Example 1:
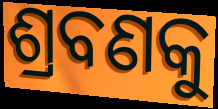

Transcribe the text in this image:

ଶ୍ରବଣକୁ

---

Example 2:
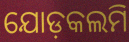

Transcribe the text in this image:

ଯୋଡ଼କଲମି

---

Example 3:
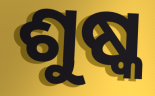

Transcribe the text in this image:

ଶୁଷ୍କ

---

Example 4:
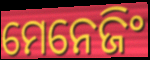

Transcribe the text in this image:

ମେନେଜିଂ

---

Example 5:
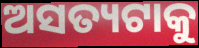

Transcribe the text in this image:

ଅସତ୍ୟଟାକୁ